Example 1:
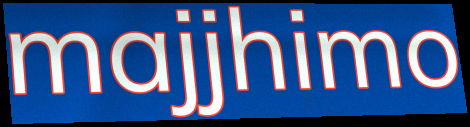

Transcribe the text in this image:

majjhimo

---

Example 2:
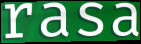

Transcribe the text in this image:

rasa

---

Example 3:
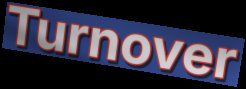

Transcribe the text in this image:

Turnover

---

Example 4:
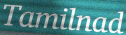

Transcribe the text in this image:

Tamilnad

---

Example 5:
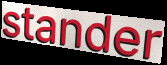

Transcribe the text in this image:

stander